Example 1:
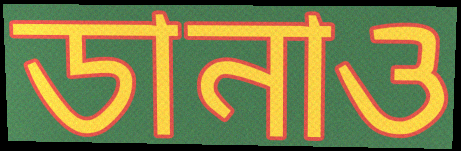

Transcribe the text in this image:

ডানাও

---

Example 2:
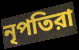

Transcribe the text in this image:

নৃপতিরা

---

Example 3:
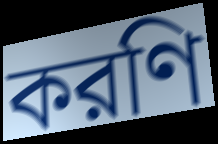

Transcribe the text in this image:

করণি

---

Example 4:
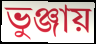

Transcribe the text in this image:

ভুঞ্জায়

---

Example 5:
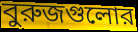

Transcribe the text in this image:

বুরুজগুলোর